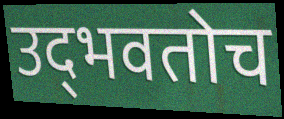
उद्भवतोच